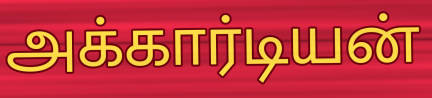
அக்கார்டியன்